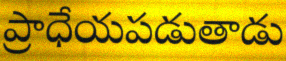
ప్రాధేయపడుతాడు